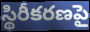
స్థిరీకరణపై